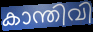
കാന്തിവി